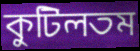
কুটিলতম